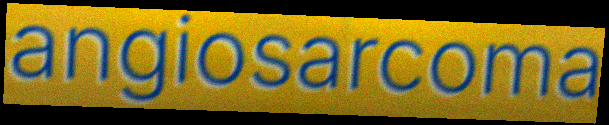
angiosarcoma